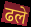
ढले